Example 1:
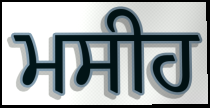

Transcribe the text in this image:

ਮਸੀਹ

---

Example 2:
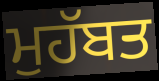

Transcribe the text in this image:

ਮੁਹੱਬਤ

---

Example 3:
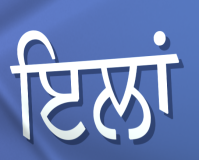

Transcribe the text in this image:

ਇਲਾਂ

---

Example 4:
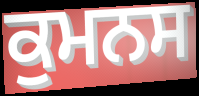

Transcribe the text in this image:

ਕੁਮਨਸ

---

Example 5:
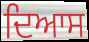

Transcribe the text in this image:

ਦਿਆਸ